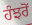
ਹੰਝਰੋਂ